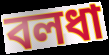
বলধা